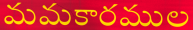
మమకారముల